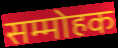
सम्मोहक